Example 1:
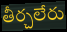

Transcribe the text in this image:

తీర్చలేరు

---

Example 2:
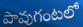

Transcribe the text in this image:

పావుగంటలో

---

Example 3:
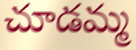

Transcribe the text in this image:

చూడమ్మ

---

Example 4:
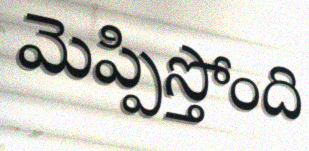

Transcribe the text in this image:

మెప్పిస్తోంది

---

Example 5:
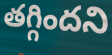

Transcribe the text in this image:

తగ్గిందని